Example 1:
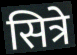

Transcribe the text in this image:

सित्रे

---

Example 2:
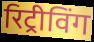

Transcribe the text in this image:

रिट्रीविंग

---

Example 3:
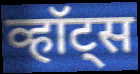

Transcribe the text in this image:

व्हॉट्स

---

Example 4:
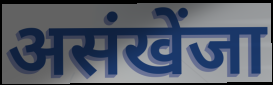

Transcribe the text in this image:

असंखेंजा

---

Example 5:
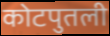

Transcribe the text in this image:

कोटपुतली